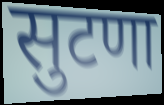
सुटणा